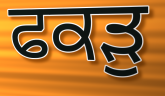
ਫਕੜੁ